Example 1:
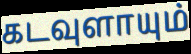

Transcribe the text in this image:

கடவுளாயும்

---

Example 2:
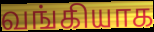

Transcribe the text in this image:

வங்கியாக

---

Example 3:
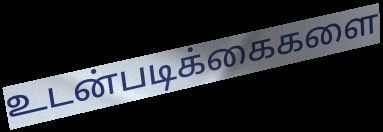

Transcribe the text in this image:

உடன்படிக்கைகளை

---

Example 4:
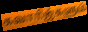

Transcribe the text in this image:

கவாரிஜ்களும்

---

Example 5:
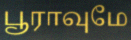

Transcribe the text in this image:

பூராவுமே